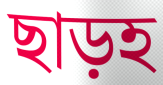
ছাড়হ